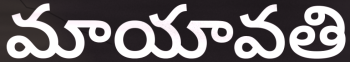
మాయావతి